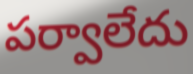
పర్వాలేదు